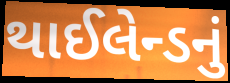
થાઈલેન્ડનું